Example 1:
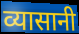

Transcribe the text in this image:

व्यासानी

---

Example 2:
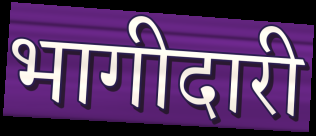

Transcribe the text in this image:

भागीदारी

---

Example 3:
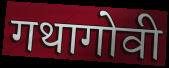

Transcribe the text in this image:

गथागोवी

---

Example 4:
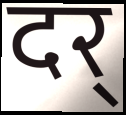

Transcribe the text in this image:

दर्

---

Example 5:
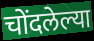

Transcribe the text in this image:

चोंदलेल्या